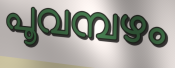
പൂവമ്പഴം